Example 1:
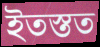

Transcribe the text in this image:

ইতস্তত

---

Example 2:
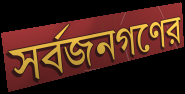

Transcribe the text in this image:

সর্বজনগণের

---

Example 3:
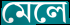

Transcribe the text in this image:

মেলে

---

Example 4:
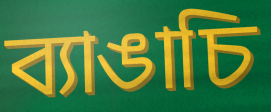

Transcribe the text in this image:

ব্যাঙাচি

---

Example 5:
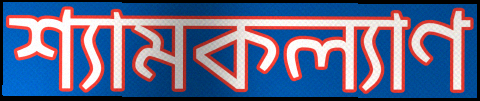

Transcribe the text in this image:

শ্যামকল্যাণ